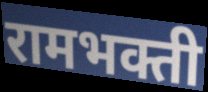
रामभक्ती